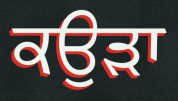
ਕਉੜਾ